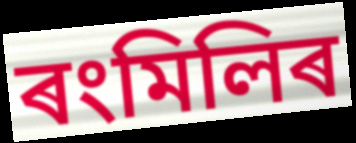
ৰংমিলিৰ